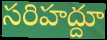
సరిహద్దూ